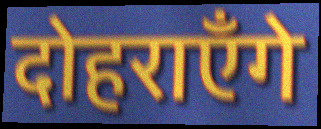
दोहराएँगे